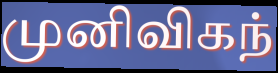
முனிவிகந்